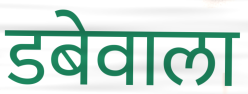
डबेवाला